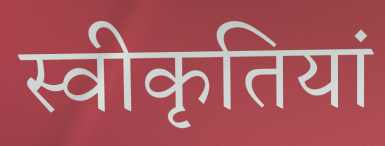
स्वीकृतियां